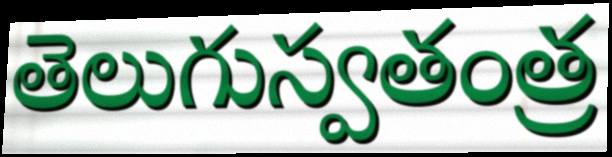
తెలుగుస్వతంత్ర